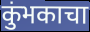
कुंभकाचा